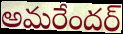
అమరేందర్